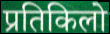
प्रतिकिलो